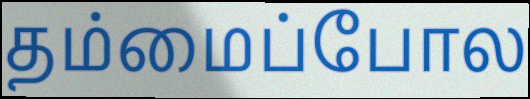
தம்மைப்போல